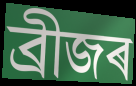
ব্ৰীজৰ